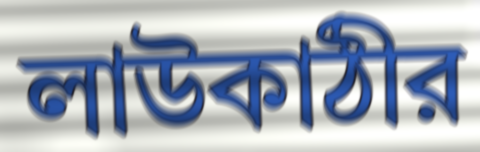
লাউকাঠীর